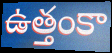
ఉత్తంకా